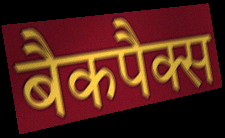
बैकपैक्स